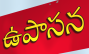
ఉపాసన